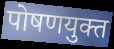
पोषणयुक्त